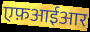
एफ़आईआर